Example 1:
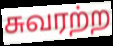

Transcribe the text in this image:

சுவரற்ற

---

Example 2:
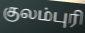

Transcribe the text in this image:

குலம்புரி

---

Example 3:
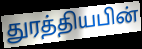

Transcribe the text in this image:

துரத்தியபின்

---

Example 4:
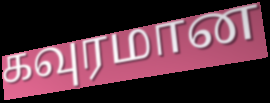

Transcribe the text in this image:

கவுரமான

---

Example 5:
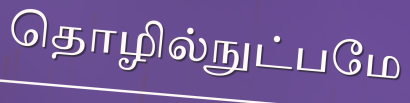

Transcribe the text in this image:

தொழில்நுட்பமே